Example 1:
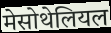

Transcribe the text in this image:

मेसोथेलियल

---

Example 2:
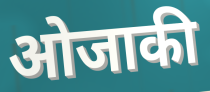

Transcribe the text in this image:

ओजाकी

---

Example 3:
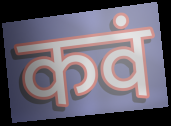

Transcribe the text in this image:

कवं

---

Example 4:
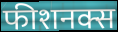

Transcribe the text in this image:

फीशनक्स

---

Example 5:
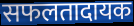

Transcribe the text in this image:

सफलतादायक